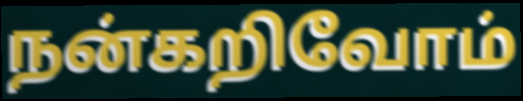
நன்கறிவோம்